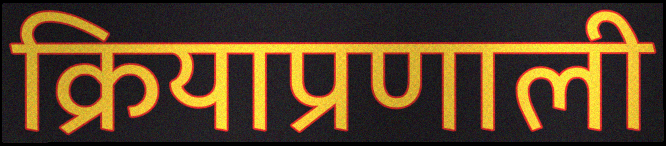
क्रियाप्रणाली